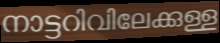
നാട്ടറിവിലേക്കുള്ള